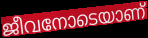
ജീവനോടെയാണ്